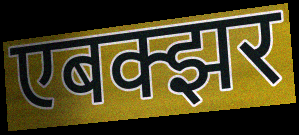
एबक्झर